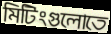
মিটিংগুলোতে